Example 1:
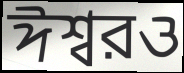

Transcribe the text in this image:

ঈশ্বরও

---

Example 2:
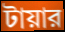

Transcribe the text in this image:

টায়ার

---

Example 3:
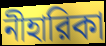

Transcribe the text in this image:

নীহারিকা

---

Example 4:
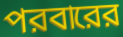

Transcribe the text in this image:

পরবারের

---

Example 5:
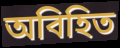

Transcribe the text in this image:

অবিহিত